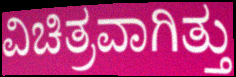
ವಿಚಿತ್ರವಾಗಿತ್ತು